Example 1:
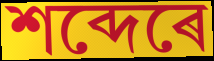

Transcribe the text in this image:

শব্দেৰে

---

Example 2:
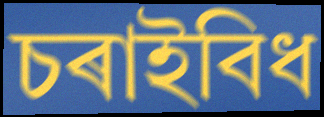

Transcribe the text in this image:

চৰাইবিধ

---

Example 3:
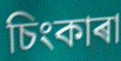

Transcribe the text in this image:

চিংকাৰা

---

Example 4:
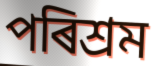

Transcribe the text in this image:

পৰিশ্ৰম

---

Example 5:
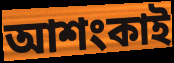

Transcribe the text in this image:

আশংকাই